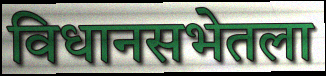
विधानसभेतला